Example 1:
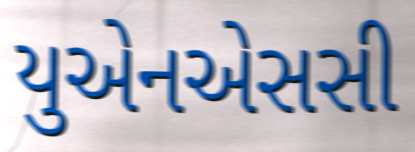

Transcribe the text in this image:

યુએનએસસી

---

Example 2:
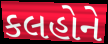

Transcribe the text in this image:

કલહોને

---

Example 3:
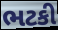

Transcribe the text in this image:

ભટકી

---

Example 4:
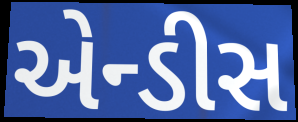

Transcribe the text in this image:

એન્ડીસ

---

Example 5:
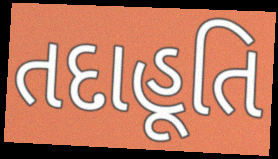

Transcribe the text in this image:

તદાહૂતિ